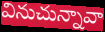
వినుచున్నావా